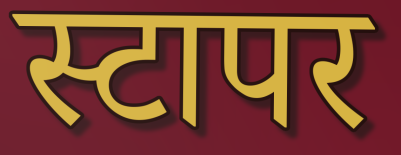
स्टापर